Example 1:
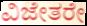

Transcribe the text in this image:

ವಿಜೇತರೇ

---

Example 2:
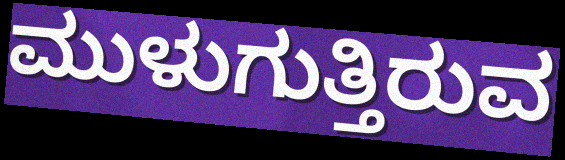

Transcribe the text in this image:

ಮುಳುಗುತ್ತಿರುವ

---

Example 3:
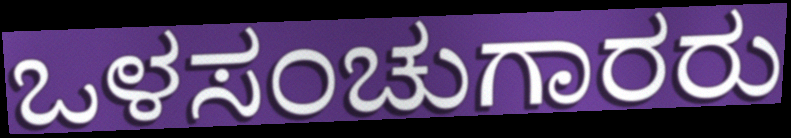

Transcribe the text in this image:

ಒಳಸಂಚುಗಾರರು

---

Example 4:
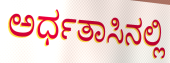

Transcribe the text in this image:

ಅರ್ಧತಾಸಿನಲ್ಲಿ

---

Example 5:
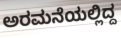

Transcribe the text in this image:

ಅರಮನೆಯಲ್ಲಿದ್ದ